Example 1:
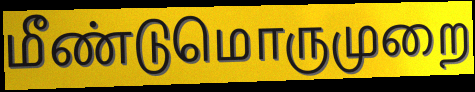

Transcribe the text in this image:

மீண்டுமொருமுறை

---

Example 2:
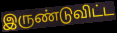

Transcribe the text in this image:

இருண்டுவிட்ட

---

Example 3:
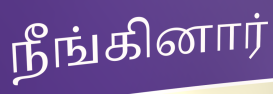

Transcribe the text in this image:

நீங்கினார்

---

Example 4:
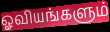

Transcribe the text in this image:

ஓவியங்களும்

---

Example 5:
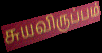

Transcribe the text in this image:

சுயவிருப்பம்